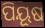
ପିୟୂଷ